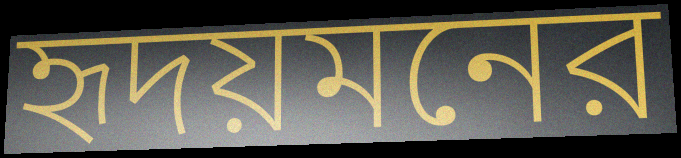
হৃদয়মনের